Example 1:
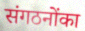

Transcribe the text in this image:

संगठनोंका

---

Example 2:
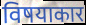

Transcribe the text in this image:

विषयाकार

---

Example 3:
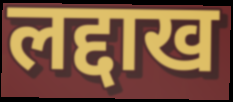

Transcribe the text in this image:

लद्दाख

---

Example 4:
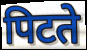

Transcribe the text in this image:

पिटते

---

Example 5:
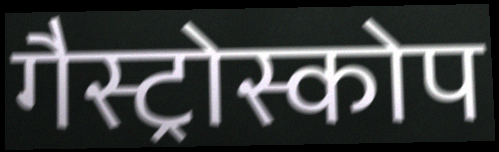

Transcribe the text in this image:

गैस्ट्रोस्कोप